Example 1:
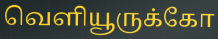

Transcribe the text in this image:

வெளியூருக்கோ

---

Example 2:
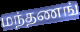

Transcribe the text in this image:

மந்தணங்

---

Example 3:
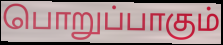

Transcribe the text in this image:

பொறுப்பாகும்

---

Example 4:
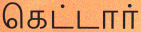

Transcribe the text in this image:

கெட்டார்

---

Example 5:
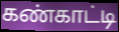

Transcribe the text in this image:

கண்காட்டி